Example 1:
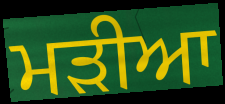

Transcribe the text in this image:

ਮੜੀਆ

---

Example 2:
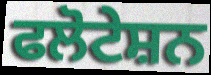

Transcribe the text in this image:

ਫਲੋਟੇਸ਼ਨ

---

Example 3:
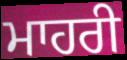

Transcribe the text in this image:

ਮਾਹਰੀ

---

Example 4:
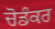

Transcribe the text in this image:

ਚੋਡੰਕਰ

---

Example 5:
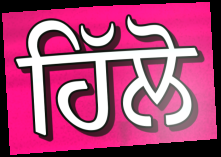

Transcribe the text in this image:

ਹਿੱਲੋ